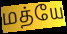
மத்யே